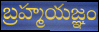
బ్రహ్మయజ్ఞం